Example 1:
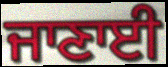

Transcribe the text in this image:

ਜਾਣਾਈ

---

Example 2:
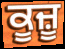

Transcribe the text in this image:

ਕੂਜ਼ੂ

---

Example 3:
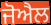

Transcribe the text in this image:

ਜੋਐਲ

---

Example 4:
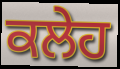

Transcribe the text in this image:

ਕਲੇਹ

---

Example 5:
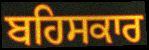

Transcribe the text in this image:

ਬਹਿਸਕਾਰ